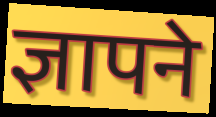
ज्ञापने